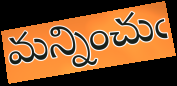
మన్నించుఁ